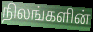
நிலங்களின்